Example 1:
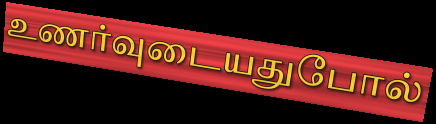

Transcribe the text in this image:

உணர்வுடையதுபோல்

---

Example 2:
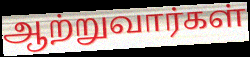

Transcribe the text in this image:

ஆற்றுவார்கள்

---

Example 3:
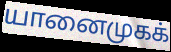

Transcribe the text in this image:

யானைமுகக்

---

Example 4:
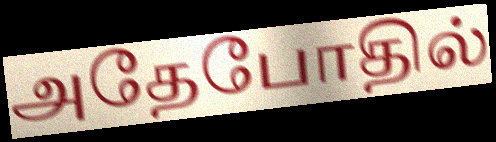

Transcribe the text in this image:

அதேபோதில்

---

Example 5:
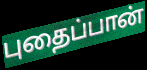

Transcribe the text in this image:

புதைப்பான்